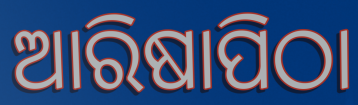
ଆରିଷାପିଠା